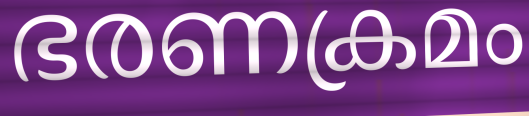
ഭരണക്രമം